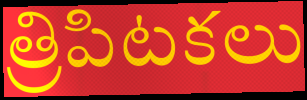
త్రిపిటకలు